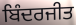
ਬਿੰਦਰਜੀਤ